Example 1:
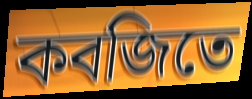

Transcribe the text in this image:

কবজিতে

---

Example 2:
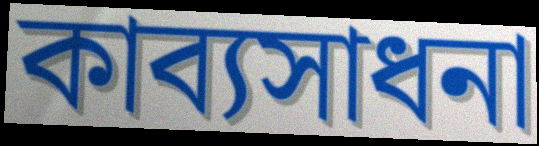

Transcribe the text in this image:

কাব্যসাধনা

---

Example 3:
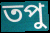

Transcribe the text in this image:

তপু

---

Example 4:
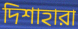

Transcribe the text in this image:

দিশাহারা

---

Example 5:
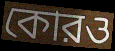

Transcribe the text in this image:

কোরও